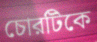
চোরটিকে